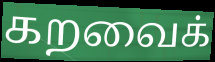
கறவைக்